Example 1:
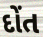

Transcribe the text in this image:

દોંત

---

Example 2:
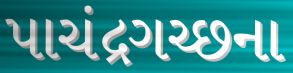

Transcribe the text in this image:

પાચંદ્રગચ્છના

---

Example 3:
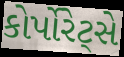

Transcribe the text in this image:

કોર્પોરેટ્સે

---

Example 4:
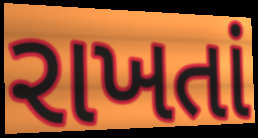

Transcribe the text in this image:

રાખતાં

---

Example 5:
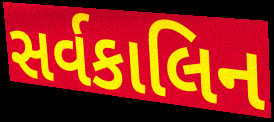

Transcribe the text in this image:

સર્વકાલિન